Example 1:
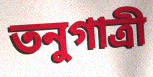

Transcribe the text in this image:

তনুগাত্রী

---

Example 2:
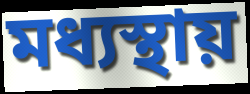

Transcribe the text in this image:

মধ্যস্থায়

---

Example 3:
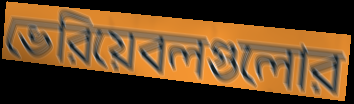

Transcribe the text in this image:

ভেরিয়েবলগুলোর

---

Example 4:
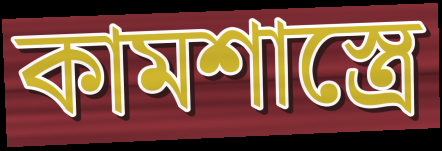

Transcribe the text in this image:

কামশাস্ত্রে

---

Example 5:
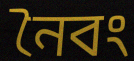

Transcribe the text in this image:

নৈবং